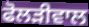
ਫੋਲੜੀਵਾਲ